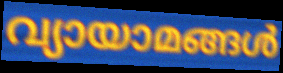
വ്യായാമങ്ങൾ